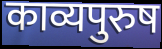
काव्यपुरुष